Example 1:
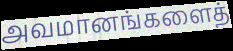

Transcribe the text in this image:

அவமானங்களைத்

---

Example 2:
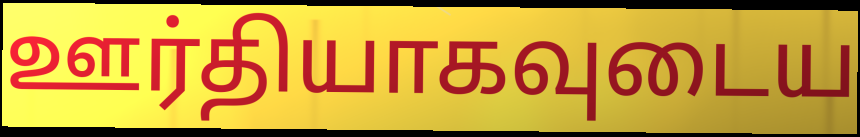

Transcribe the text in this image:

ஊர்தியாகவுடைய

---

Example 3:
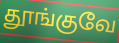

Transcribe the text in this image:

தூங்குவே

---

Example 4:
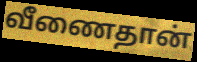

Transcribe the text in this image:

வீணைதான்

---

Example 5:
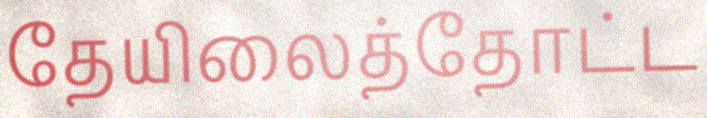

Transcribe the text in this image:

தேயிலைத்தோட்ட